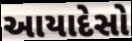
આયાદેસો